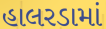
હાલરડામાં